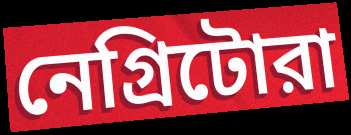
নেগ্রিটোরা